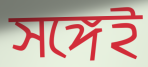
সঙ্গেই